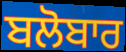
ਬਲੋਬਾਰ